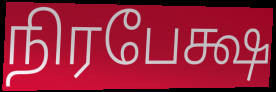
நிரபேக்ஷ